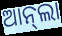
ଆନ୍‌ଲା